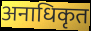
अनाधिकृत